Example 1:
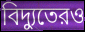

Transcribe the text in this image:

বিদ্যুতেরও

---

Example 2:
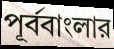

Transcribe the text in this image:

পূর্ববাংলার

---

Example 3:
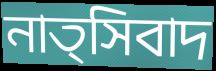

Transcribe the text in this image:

নাত্সিবাদ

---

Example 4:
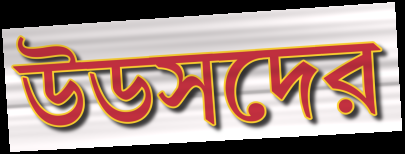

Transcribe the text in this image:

উডসদের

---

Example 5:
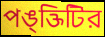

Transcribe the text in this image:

পঙ্‌ক্তিটির